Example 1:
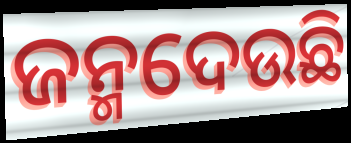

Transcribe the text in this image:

ଜନ୍ମଦେଉଛି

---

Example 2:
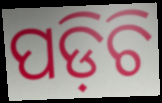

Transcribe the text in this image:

ପଡ଼ିଚି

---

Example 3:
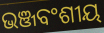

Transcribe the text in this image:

ଭଞ୍ଜବଂଶୀୟ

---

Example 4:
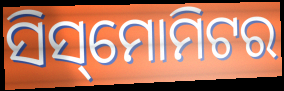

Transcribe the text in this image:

ସିସ୍‌ମୋମିଟର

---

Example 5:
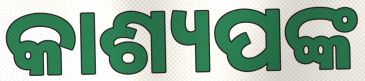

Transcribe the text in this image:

କାଶ୍ୟପଙ୍କ